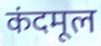
कंदमूल